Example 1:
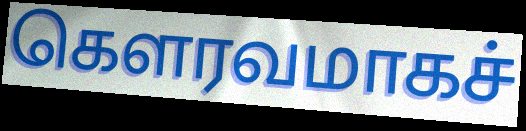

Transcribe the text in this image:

கௌரவமாகச்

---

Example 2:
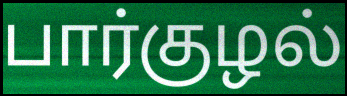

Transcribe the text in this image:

பார்குழல்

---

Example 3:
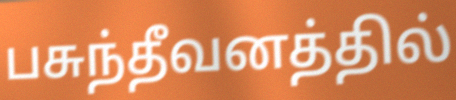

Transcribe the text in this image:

பசுந்தீவனத்தில்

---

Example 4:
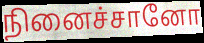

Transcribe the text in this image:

நினைச்சானோ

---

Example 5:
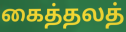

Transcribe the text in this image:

கைத்தலத்